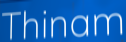
Thinam